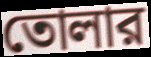
তোলার